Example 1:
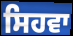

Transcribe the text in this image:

ਸਿਹਵਾ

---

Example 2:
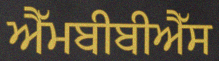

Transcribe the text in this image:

ਐੱਮਬੀਬੀਐੱਸ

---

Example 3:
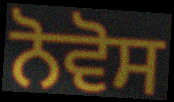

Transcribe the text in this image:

ਨੋਵੋਸ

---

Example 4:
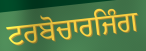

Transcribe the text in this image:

ਟਰਬੋਚਾਰਜਿੰਗ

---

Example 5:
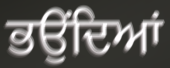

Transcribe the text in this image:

ਭਉਂਦਿਆਂ